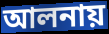
আলনায়